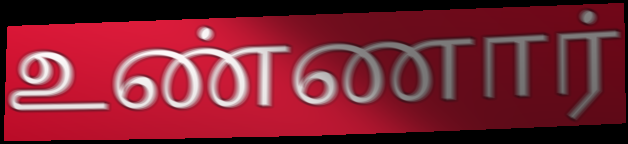
உண்ணார்